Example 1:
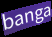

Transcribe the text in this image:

banga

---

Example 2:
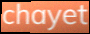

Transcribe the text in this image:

chayet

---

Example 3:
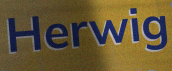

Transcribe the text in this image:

Herwig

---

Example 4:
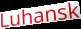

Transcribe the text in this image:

Luhansk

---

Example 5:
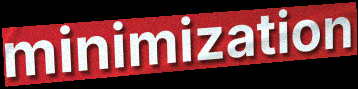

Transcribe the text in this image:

minimization